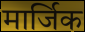
मार्जिक